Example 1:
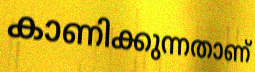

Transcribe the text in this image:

കാണിക്കുന്നതാണ്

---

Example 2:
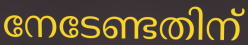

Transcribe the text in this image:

നേടേണ്ടതിന്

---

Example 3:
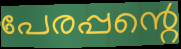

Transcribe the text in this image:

പേരപ്പന്റെ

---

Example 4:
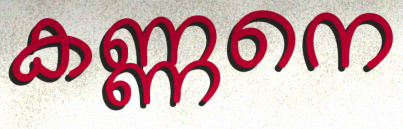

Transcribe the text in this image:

കണ്ണനെ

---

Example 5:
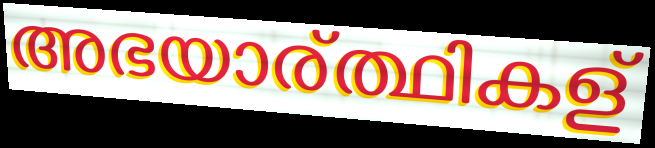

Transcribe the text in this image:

അഭയാര്ത്ഥികള്